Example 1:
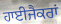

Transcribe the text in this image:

ਹਾਈਜੈਕਰਾਂ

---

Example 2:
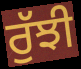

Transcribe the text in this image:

ਰੁੱਝੀ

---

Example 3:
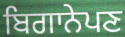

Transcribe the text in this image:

ਬਿਗਾਨੇਪਣ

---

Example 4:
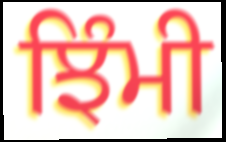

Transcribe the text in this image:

ਝਿੰਮੀ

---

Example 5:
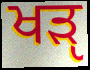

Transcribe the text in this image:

ਖੜੵ